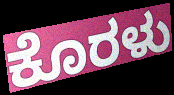
ಕೊರಳು